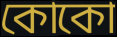
কোকো